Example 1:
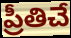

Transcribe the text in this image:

ప్రీతిచే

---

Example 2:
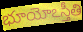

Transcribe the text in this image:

భూయోఽస్తీతి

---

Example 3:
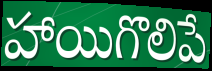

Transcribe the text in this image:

హాయిగొలిపే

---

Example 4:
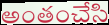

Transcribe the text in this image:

అంతంచేసి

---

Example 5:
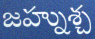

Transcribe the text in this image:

జహ్నుశ్చ